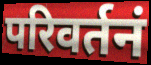
परिवर्तनं